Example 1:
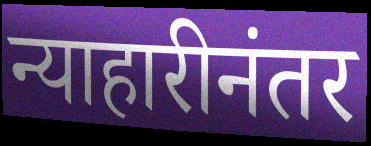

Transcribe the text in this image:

न्याहारीनंतर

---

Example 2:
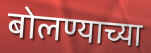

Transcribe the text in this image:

बोलण्याच्या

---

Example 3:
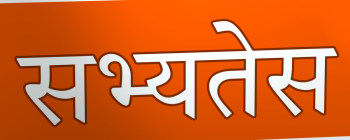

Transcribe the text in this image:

सभ्यतेस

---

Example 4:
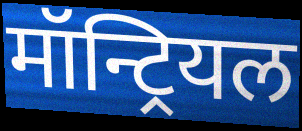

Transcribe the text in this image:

मॉन्ट्रियल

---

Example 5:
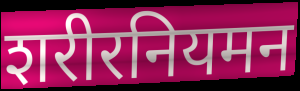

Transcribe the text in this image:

शरीरनियमन